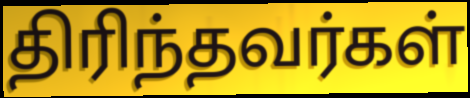
திரிந்தவர்கள்